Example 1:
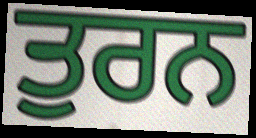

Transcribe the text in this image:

ਤੁਰਨ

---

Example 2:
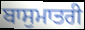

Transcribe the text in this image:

ਬਾਸੁਮਾਤਰੀ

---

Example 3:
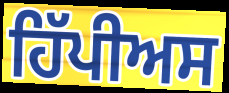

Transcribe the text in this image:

ਹਿੱਪੀਅਸ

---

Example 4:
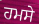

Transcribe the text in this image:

ਹਮਸੇ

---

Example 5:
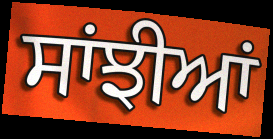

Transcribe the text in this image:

ਸਾਂਝੀਆਂ